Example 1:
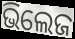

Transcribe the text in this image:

ଭିଲେଜ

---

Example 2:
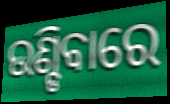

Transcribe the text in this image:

ଉଣ୍ଡିବାରେ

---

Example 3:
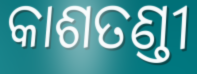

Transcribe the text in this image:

କାଶତଣ୍ଡୀ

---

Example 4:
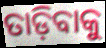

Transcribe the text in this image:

ତାଡ଼ିବାକୁ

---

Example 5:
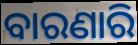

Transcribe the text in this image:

ବାରଣାରି